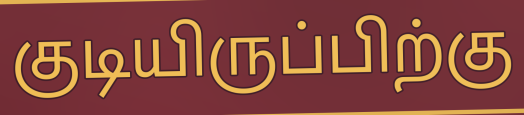
குடியிருப்பிற்கு